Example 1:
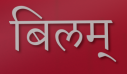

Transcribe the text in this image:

बिलम्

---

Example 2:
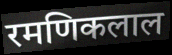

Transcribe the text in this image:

रमणिकलाल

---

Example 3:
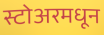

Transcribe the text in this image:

स्टोअरमधून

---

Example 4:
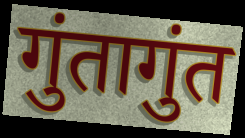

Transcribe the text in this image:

गुंतागुंत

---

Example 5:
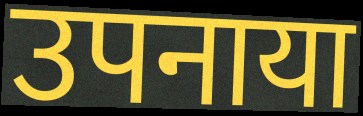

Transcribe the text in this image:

उपनाया